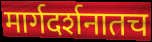
मार्गदर्शनातच